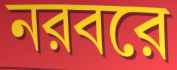
নরবরে